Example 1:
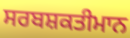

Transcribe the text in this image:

ਸਰਬਸ਼ਕਤੀਮਾਨ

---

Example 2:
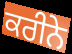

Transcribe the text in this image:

ਕਰੀਨੇ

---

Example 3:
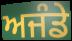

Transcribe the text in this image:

ਅਜੰਡੇ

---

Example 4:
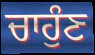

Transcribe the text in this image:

ਚਾਹੁੰਣ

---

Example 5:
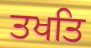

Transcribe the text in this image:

ਤਖਤਿ